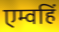
एम्वहिं